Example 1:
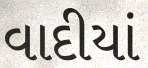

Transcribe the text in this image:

વાદીયાં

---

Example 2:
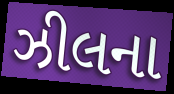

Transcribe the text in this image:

ઝીલના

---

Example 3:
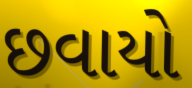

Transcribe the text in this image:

છવાયો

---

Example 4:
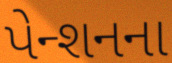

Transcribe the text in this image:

પેન્શનના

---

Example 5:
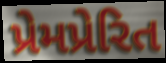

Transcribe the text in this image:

પ્રેમપ્રેરિત